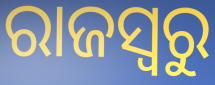
ରାଜସ୍ୱରୁ